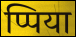
प्पिया